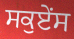
ਸਕੁਏਂਸ